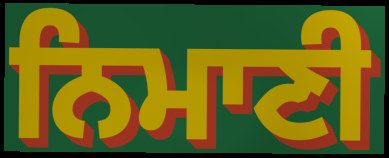
ਨਿਮਾਣੀ